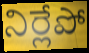
నిర్లేపో